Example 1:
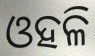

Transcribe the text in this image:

ଓହଳି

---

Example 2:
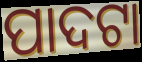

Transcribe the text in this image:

ପାଦଟା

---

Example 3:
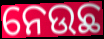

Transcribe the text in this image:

ନେଉଛ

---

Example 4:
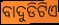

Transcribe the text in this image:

ବାଦୁଡିଟିଏ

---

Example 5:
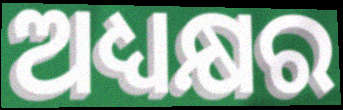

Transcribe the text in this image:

ଅଧ୍ୟକ୍ଷର